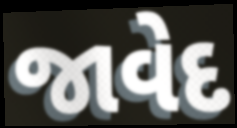
જાવેદ